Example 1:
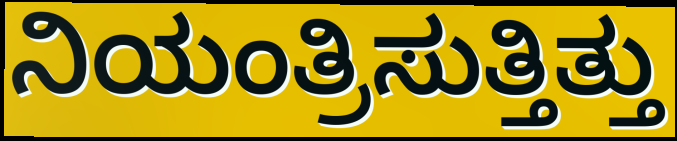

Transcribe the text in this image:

ನಿಯಂತ್ರಿಸುತ್ತಿತ್ತು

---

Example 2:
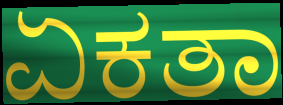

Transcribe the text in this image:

ಏಕತಾ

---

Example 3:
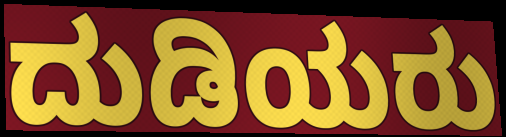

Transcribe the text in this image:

ದುಡಿಯರು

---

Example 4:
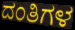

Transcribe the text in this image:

ದಂತಿಗಳ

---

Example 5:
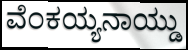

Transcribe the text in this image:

ವೆಂಕಯ್ಯನಾಯ್ಡು